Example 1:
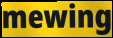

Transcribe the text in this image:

mewing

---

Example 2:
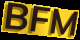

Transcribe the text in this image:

BFM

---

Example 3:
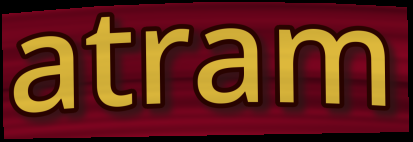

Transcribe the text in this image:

atram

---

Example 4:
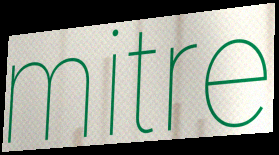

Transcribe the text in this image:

mitre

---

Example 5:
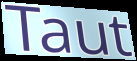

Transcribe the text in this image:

Taut